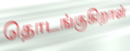
தொடங்குகிறாள்